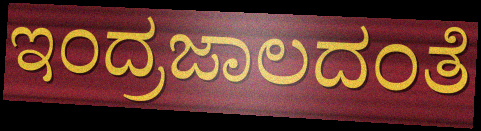
ಇಂದ್ರಜಾಲದಂತೆ